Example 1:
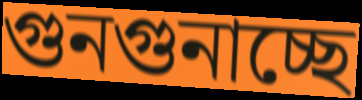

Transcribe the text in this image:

গুনগুনাচ্ছে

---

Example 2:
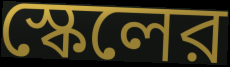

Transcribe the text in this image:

স্কেলের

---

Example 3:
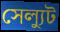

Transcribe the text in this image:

সেল্যুট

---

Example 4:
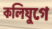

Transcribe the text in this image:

কলিযুগে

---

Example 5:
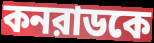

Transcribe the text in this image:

কনরাডকে